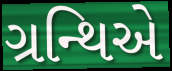
ગ્રન્થિએ